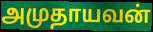
அமுதாயவன்